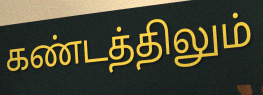
கண்டத்திலும்